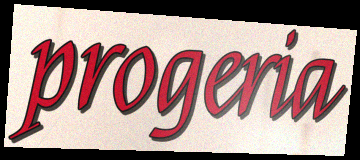
progeria